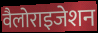
वैलोराइजेशन